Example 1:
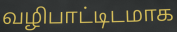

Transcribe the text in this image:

வழிபாட்டிடமாக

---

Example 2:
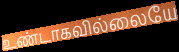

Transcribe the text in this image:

உண்டாகவில்லையே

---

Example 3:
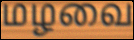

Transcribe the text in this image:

மழவை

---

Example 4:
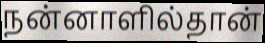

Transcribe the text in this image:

நன்னாளில்தான்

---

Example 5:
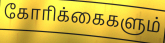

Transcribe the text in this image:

கோரிக்கைகளும்